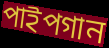
পাইপগান